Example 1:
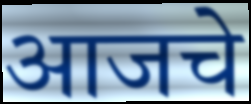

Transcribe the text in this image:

आजचे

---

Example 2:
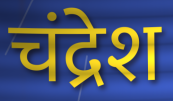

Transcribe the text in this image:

चंद्रेश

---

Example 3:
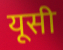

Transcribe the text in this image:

यूसी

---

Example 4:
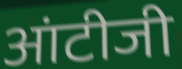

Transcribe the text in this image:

आंटीजी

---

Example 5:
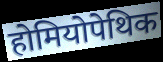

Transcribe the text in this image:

होमियोपेथिक